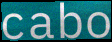
cabo